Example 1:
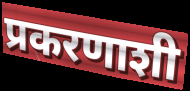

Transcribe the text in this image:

प्रकरणाशी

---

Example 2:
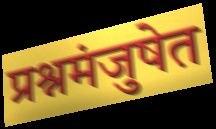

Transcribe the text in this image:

प्रश्नमंजुषेत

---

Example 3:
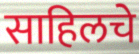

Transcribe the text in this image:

साहिलचे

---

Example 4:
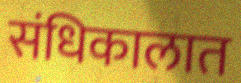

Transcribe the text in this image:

संधिकालात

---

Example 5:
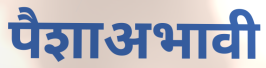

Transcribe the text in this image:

पैशाअभावी